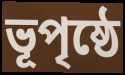
ভূপৃষ্ঠে